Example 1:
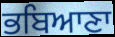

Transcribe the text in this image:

ਭਬਿਆਣਾ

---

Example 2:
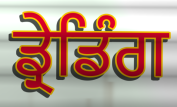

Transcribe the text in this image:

ਡ੍ਰੇਡਿੰਗ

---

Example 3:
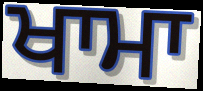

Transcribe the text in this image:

ਖਾਮਾ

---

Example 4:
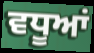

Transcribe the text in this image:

ਵਧੂਆਂ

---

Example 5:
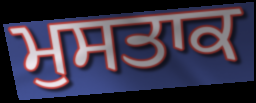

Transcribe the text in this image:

ਮੁਸਤਾਕ